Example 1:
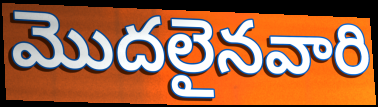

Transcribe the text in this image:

మొదలైనవారి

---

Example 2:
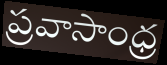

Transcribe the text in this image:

ప్రవాసాంధ్ర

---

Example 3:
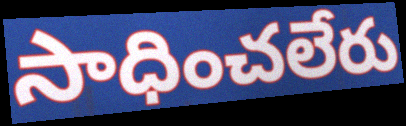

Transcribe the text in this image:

సాధించలేరు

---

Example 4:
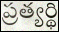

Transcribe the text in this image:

ప్రత్యర్థి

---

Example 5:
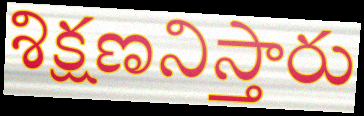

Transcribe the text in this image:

శిక్షణనిస్తారు